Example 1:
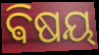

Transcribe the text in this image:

ଵିଷୟ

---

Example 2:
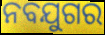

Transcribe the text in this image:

ନବଯୁଗର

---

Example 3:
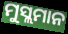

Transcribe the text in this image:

ମୁସ୍ଲମାନ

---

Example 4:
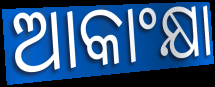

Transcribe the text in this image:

ଆକାଂକ୍ଷା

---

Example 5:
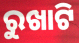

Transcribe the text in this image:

ରୁଖାଟି